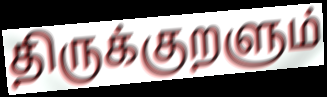
திருக்குறளும்